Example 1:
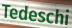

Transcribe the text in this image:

Tedeschi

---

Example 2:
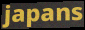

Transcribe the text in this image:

japans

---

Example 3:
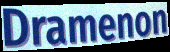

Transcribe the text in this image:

Dramenon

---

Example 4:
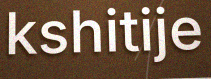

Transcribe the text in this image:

kshitije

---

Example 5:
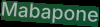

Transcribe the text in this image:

Mabapone